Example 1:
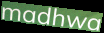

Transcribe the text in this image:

madhwa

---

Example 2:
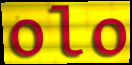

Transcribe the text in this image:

olo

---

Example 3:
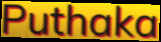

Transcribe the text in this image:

Puthaka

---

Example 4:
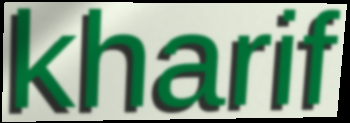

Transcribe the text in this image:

kharif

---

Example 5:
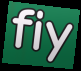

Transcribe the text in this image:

fiy